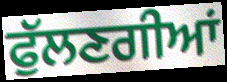
ਫੁੱਲਣਗੀਆਂ